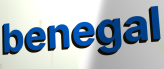
benegal